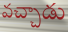
వచ్చాడు